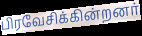
பிரவேசிக்கின்றனர்